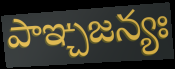
పాఞ్చజన్యః